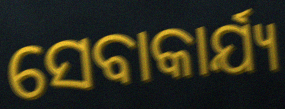
ସେବାକାର୍ଯ୍ୟ